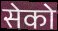
सेको